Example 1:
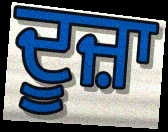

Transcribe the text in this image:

ਦੂਜ਼ਾ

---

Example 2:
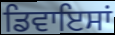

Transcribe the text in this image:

ਡਿਵਾਇਸਾਂ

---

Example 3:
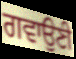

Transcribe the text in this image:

ਗਵਾਉਣੀ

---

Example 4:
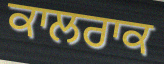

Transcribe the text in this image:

ਕਾਲਰਾਕ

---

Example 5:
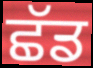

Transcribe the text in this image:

ਛੱਡ